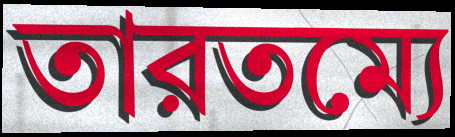
তারতম্যে